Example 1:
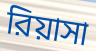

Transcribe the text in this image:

রিয়াসা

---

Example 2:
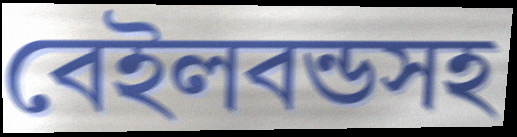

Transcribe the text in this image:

বেইলবন্ডসহ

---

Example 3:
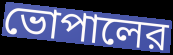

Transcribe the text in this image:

ভোপালের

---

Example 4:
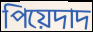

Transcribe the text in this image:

পিয়েদাদ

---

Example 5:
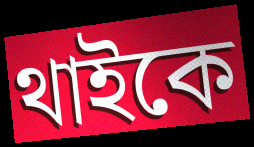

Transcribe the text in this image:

থাইকে